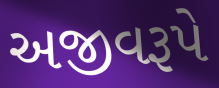
અજીવરૂપે